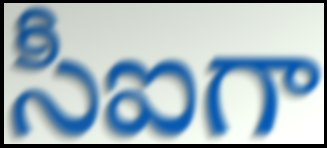
సీఐగా